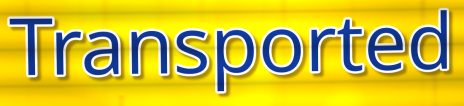
Transported